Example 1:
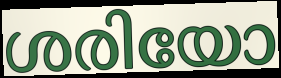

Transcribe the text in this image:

ശരിയോ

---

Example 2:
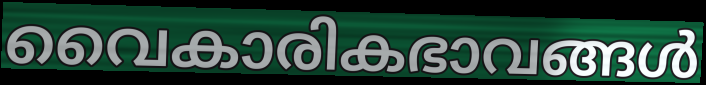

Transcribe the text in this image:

വൈകാരികഭാവങ്ങൾ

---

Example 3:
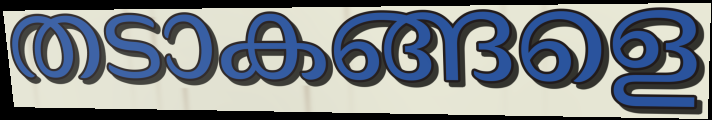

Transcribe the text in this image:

തടാകങ്ങളെ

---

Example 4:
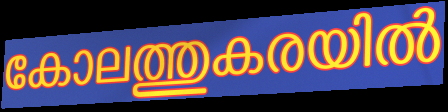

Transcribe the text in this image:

കോലത്തുകരയിൽ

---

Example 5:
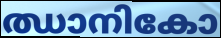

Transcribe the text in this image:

ഝാനികോ